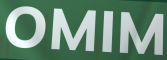
OMIM